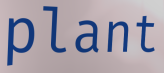
plant